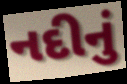
નદીનું